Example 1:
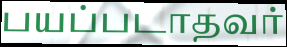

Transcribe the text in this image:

பயப்படாதவர்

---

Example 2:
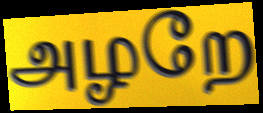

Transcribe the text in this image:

அழறே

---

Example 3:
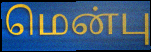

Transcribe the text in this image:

மென்பு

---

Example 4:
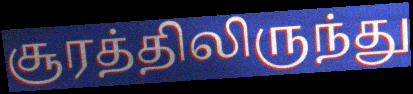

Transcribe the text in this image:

சூரத்திலிருந்து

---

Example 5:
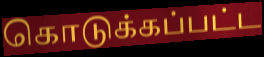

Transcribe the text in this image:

கொடுக்கப்பட்ட